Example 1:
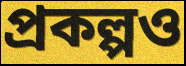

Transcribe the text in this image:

প্রকল্পও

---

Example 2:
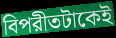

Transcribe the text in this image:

বিপরীতটাকেই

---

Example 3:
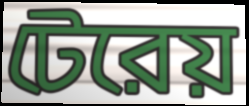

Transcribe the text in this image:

টেরেয়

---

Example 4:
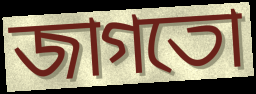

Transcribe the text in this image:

জাগতো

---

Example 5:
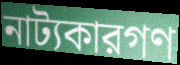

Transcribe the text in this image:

নাট্যকারগণ